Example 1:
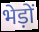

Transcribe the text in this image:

भेड़ों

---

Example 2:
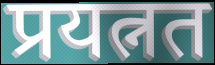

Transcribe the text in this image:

प्रयत्नत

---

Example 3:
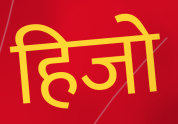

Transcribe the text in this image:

हिजो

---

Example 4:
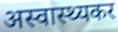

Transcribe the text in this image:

अस्वास्थ्यकर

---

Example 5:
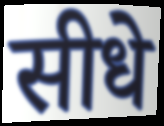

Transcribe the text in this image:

सीधे